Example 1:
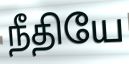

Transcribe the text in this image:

நீதியே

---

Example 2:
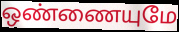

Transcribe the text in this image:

ஒண்ணையுமே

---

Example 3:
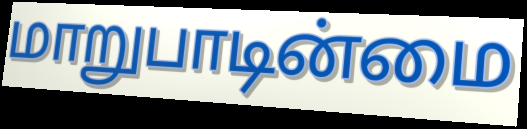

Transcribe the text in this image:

மாறுபாடின்மை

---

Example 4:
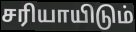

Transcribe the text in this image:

சரியாயிடும்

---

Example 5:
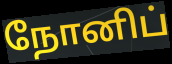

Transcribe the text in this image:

நோனிப்